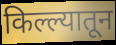
किल्ल्यातून